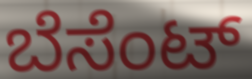
ಬೆಸೆಂಟ್